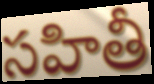
సహితీ